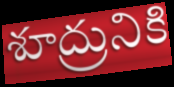
శూద్రునికి